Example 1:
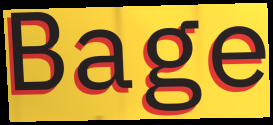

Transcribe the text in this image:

Bage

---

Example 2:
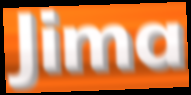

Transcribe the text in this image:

Jima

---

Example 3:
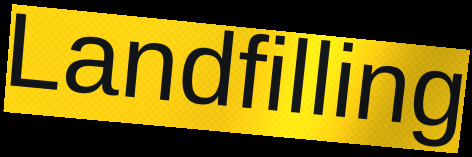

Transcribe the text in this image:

Landfilling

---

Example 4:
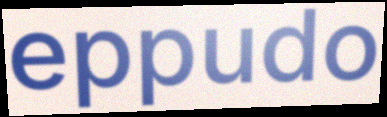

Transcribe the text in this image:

eppudo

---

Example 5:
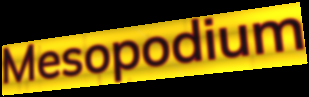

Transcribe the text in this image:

Mesopodium